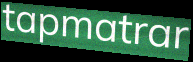
tapmatrar